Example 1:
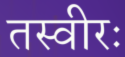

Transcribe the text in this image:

तस्वीरः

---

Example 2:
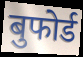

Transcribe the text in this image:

बुफोर्ड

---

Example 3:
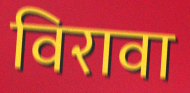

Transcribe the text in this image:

विरावा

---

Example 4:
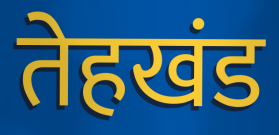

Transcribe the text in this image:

तेहखंड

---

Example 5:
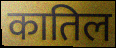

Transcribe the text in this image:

कातिल